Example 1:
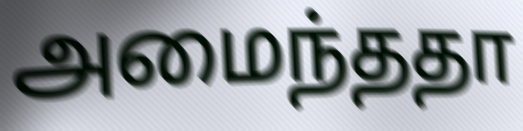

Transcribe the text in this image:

அமைந்ததா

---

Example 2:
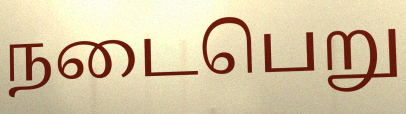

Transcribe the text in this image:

நடைபெறு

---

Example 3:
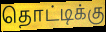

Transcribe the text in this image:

தொட்டிக்கு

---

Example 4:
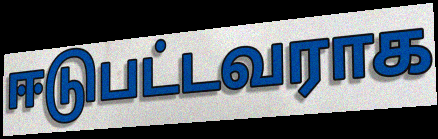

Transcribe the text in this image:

ஈடுபட்டவராக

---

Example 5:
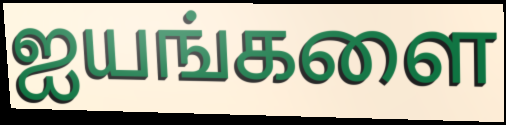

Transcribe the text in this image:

ஐயங்களை